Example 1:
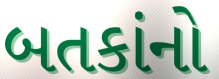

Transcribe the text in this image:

બતકાંનો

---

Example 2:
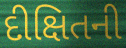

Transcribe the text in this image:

દીક્ષિતની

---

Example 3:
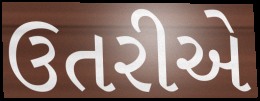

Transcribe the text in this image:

ઉતરીએ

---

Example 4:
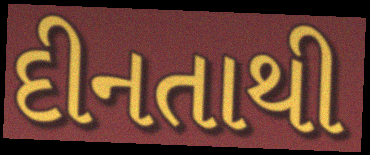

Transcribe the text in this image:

દીનતાથી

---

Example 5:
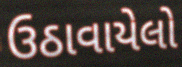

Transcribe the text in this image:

ઉઠાવાયેલો